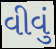
વીવું